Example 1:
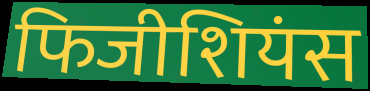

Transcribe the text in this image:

फिजीशियंस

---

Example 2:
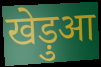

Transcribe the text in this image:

खेड़ुआ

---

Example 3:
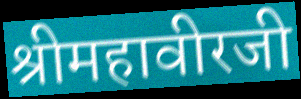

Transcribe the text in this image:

श्रीमहावीरजी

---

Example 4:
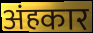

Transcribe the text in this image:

अंहकार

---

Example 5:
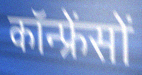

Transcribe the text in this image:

कॉन्फ्रेंसों